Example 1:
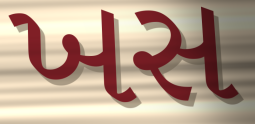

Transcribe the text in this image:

ખસ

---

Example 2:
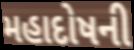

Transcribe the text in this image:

મહાદોષની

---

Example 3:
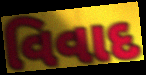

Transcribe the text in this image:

વિવાદ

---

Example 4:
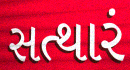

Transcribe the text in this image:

સત્થારં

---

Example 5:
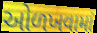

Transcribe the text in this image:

ઓળખવામાં